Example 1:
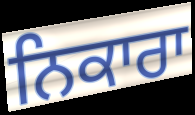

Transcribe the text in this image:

ਨਿਕਾਰਾ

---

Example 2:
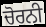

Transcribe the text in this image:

ਚੋਰਨੀ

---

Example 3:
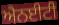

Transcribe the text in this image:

ਐਨਈਟੀ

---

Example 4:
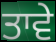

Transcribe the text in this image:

ਤਾਵੇ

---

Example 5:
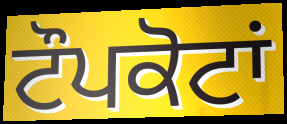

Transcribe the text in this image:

ਟੌਪਕੋਟਾਂ